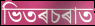
ভিতৰচৰাত